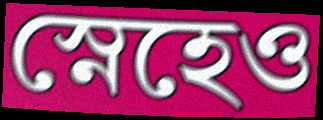
স্নেহেও